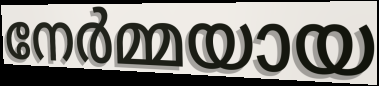
നേർമ്മയായ